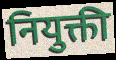
नियुक्ती